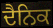
ਦੈਨਿਕ